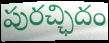
పురచ్ఛిదం